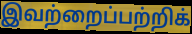
இவற்றைப்பற்றிக்